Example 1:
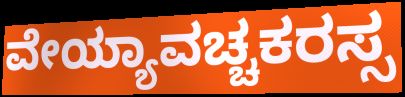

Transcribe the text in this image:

ವೇಯ್ಯಾವಚ್ಚಕರಸ್ಸ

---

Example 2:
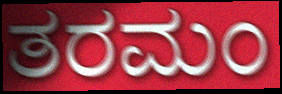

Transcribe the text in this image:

ತರಮಂ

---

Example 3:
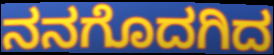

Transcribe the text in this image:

ನನಗೊದಗಿದ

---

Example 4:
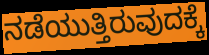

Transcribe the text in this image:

ನಡೆಯುತ್ತಿರುವುದಕ್ಕೆ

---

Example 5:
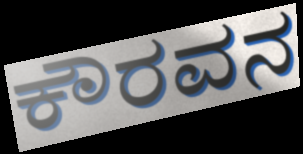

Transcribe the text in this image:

ಕೌರವನ